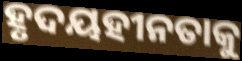
ହୃଦୟହୀନତାକୁ